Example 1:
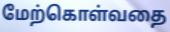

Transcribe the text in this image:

மேற்கொள்வதை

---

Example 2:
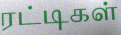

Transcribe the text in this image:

ரட்டிகள்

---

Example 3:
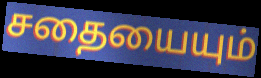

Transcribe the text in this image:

சதையையும்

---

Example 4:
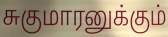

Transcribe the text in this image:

சுகுமாரனுக்கும்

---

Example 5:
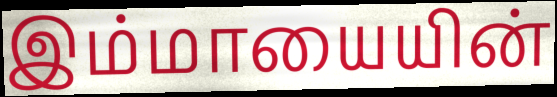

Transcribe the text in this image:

இம்மாயையின்